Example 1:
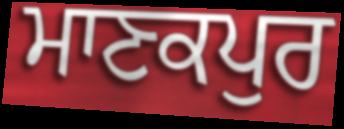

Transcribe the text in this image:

ਮਾਣਕਪੁਰ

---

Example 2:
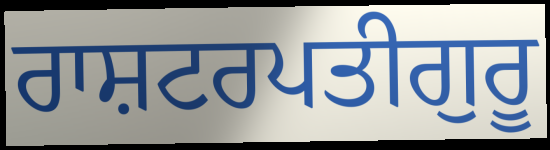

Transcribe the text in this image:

ਰਾਸ਼ਟਰਪਤੀਗੁਰੂ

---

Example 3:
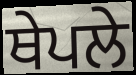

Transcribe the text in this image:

ਥੇਪਲੇ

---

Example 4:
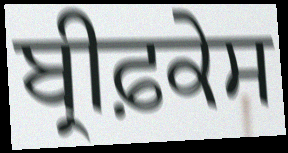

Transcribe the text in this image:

ਬ੍ਰੀਫ਼ਕੇਸ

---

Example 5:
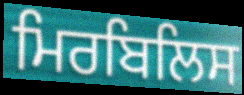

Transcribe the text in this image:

ਮਿਰਬਿਲਿਸ